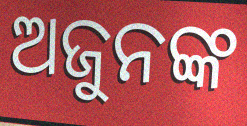
ଅଜୁନଙ୍କ